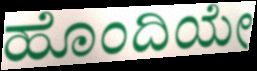
ಹೊಂದಿಯೇ